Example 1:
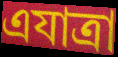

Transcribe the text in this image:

এযাত্রা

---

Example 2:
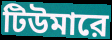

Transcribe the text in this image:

টিউমারে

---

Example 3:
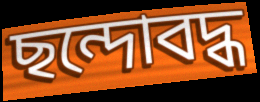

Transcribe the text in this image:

ছন্দোবদ্ধ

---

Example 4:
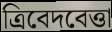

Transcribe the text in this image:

ত্রিবেদবেত্তা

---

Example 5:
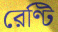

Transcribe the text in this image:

রেণ্টি